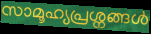
സാമൂഹ്യപ്രശ്നങ്ങൾ